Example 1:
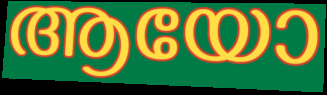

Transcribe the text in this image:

ആയോ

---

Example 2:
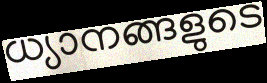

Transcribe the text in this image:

ധ്യാനങ്ങളുടെ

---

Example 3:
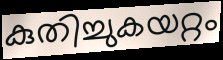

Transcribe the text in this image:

കുതിച്ചുകയറ്റം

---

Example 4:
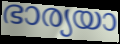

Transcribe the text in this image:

ഭാര്യയാ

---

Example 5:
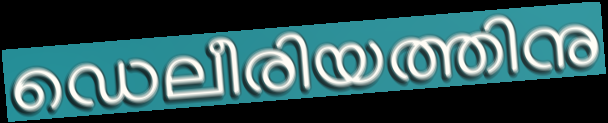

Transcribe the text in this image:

ഡെലീരിയത്തിനു